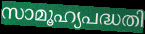
സാമൂഹ്യപദ്ധതി